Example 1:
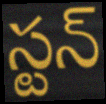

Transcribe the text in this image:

స్టన్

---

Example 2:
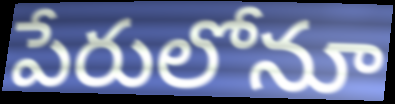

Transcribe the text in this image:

పేరులోనూ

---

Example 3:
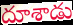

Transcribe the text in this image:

దూశాడు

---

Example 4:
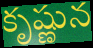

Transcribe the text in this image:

కృష్ణున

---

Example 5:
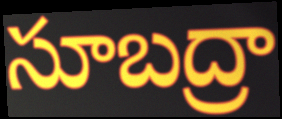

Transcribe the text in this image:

సూబద్రా